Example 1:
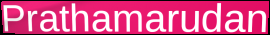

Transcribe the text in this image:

Prathamarudan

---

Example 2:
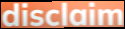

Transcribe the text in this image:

disclaim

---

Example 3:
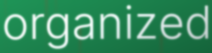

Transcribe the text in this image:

organized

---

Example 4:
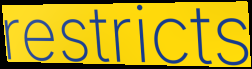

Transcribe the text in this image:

restricts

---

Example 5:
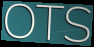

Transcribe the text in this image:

OTS